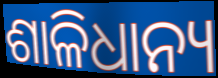
ଶାଳିଧାନ୍ୟ